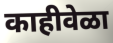
काहीवेळा